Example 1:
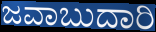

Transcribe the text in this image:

ಜವಾಬುದಾರಿ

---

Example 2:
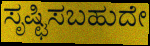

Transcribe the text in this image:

ಸೃಷ್ಟಿಸಬಹುದೇ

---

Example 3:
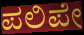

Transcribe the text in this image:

ಪಲಿಪೇ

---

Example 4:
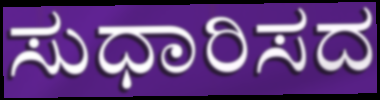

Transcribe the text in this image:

ಸುಧಾರಿಸದ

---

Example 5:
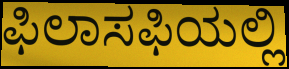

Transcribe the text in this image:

ಫಿಲಾಸಫಿಯಲ್ಲಿ